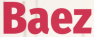
Baez